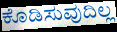
ಕೊಡಿಸುವುದಿಲ್ಲ